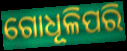
ଗୋଧୂଳିପରି